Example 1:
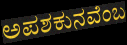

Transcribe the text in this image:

ಅಪಶಕುನವೆಂಬ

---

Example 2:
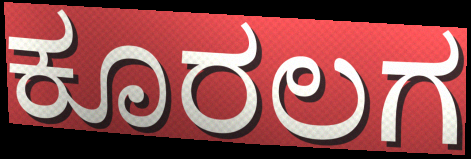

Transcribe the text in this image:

ಕೂರಲಗ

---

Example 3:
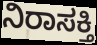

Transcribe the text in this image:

ನಿರಾಸಕ್ತಿ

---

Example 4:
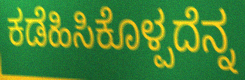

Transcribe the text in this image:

ಕಡೆಹಿಸಿಕೊಳ್ಪದೆನ್ನ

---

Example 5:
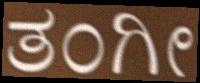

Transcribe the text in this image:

ತಂಗೀ